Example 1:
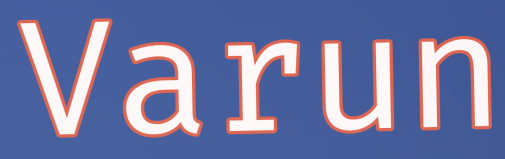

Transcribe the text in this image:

Varun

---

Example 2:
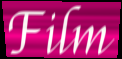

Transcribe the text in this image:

Film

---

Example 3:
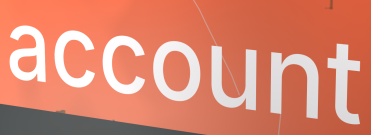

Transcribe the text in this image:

account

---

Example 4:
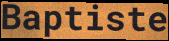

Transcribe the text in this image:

Baptiste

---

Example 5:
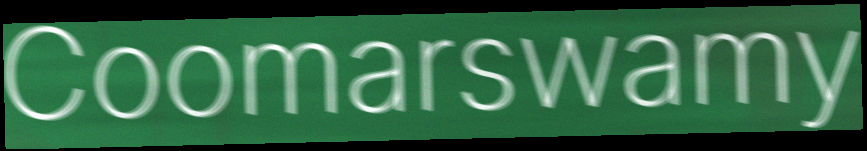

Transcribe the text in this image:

Coomarswamy